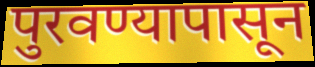
पुरवण्यापासून